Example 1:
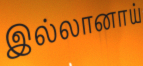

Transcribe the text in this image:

இல்லானாய்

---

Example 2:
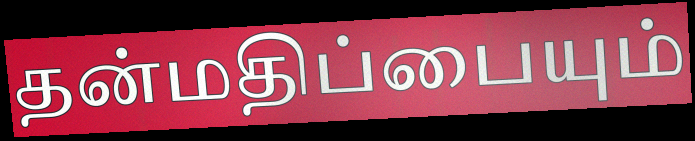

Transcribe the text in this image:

தன்மதிப்பையும்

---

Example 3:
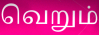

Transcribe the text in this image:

வெறும்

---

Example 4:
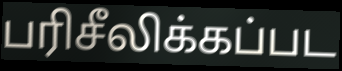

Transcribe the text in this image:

பரிசீலிக்கப்பட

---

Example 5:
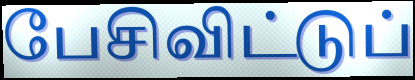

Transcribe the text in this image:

பேசிவிட்டுப்